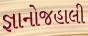
જ્ઞાનોજહાલી